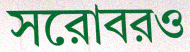
সরোবরও